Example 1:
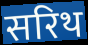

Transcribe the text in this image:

सरिथ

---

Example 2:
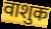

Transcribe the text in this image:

वाशुक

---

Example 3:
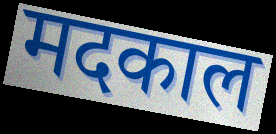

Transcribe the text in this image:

मदकाल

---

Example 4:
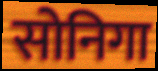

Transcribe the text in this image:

सोनिगा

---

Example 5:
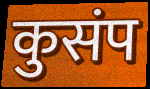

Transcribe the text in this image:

कुसंप